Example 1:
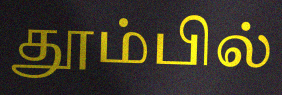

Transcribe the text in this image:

தூம்பில்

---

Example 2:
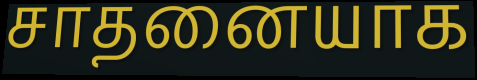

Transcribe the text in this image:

சாதனையாக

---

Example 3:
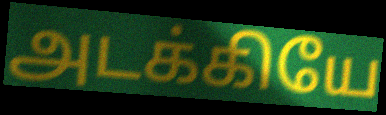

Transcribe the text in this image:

அடக்கியே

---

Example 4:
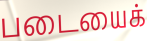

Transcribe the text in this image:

படையைக்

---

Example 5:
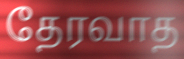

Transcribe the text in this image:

தேரவாத